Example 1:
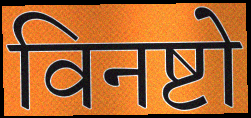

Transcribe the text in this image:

विनष्टो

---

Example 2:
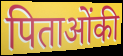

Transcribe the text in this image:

पिताओंकी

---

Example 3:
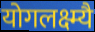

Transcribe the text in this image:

योगलक्ष्म्यै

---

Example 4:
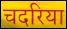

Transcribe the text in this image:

चदरिया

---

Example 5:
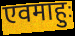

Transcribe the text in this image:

एवमाहुः